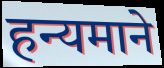
हन्यमाने